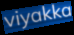
viyakka